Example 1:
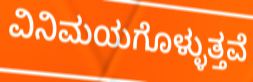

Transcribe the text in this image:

ವಿನಿಮಯಗೊಳ್ಳುತ್ತವೆ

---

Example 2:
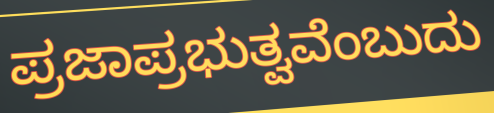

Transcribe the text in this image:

ಪ್ರಜಾಪ್ರಭುತ್ವವೆಂಬುದು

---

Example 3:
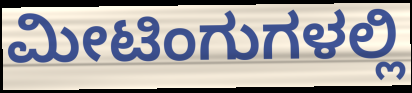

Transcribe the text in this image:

ಮೀಟಿಂಗುಗಳಲ್ಲಿ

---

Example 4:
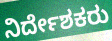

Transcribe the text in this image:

ನಿರ್ದೇಶಕರು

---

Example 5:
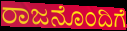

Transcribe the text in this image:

ರಾಜನೊಂದಿಗೆ